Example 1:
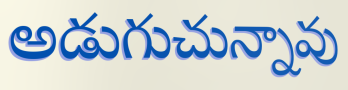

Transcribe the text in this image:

అడుగుచున్నావు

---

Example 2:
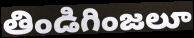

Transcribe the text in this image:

తిండిగింజలూ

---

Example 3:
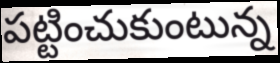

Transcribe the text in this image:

పట్టించుకుంటున్న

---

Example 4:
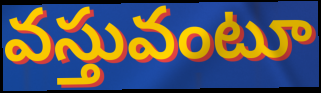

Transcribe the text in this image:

వస్తువంటూ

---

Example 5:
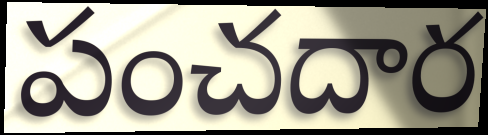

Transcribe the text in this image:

పంచదార